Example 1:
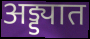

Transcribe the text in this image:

अड्ड्यात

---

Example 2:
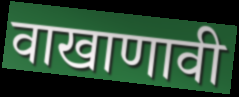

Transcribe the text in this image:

वाखाणावी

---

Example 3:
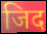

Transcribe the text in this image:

जिद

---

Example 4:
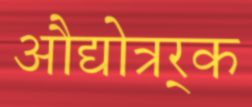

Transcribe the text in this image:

औद्योत्रर्क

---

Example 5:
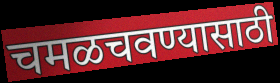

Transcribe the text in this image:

चमळचवण्यासाठी